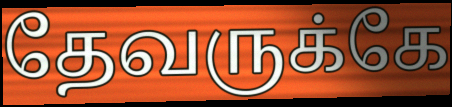
தேவருக்கே